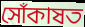
সোঁকাষত